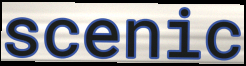
scenic